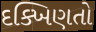
દક્ખિણતો